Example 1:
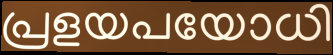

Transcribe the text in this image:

പ്രളയപയോധി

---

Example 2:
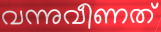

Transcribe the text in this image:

വന്നുവീണത്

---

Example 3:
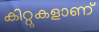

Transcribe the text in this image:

കിറ്റുകളാണ്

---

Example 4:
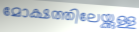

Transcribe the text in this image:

മോക്ഷത്തിലേയ്ക്കുള്ള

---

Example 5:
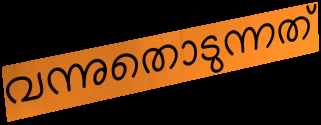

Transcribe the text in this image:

വന്നുതൊടുന്നത്